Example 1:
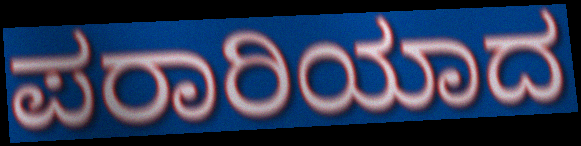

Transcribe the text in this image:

ಪರಾರಿಯಾದ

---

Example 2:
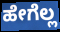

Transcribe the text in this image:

ಹೇಗೆಲ್ಲ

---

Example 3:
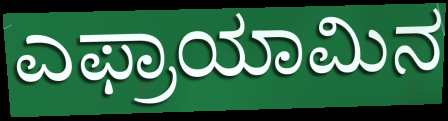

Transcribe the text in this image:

ಎಫ್ರಾಯಾಮಿನ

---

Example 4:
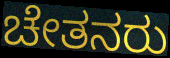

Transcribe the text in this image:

ಚೇತನರು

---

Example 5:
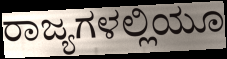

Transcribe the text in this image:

ರಾಜ್ಯಗಳಲ್ಲಿಯೂ